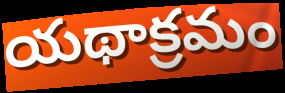
యథాక్రమం